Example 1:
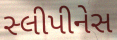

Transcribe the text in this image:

સ્લીપીનેસ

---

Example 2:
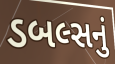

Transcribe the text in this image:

ડબલ્સનું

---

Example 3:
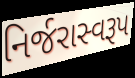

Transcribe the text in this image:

નિર્જરાસ્વરૂપ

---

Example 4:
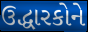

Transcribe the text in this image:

ઉદ્ધારકોને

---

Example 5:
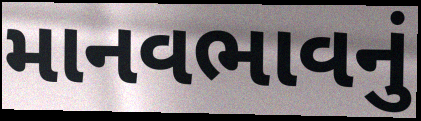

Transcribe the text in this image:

માનવભાવનું